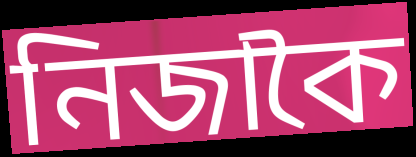
নিজাকৈ